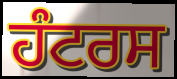
ਹੰਟਰਸ